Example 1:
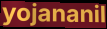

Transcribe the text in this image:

yojananil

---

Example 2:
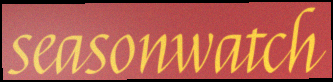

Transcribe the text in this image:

seasonwatch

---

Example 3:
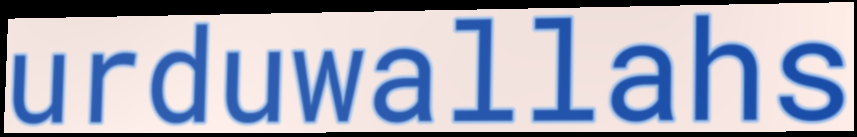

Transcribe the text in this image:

urduwallahs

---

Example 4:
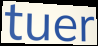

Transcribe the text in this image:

tuer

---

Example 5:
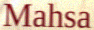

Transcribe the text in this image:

Mahsa